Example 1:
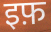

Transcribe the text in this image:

इफ़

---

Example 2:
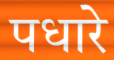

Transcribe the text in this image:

पधारे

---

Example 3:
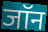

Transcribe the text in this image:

जॉन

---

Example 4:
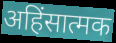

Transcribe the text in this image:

अहिंसात्मक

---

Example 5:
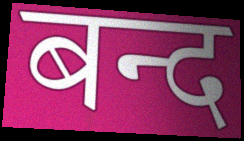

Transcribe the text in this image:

बन्द